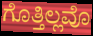
ಗೊತ್ತಿಲ್ಲವೊ